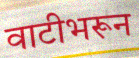
वाटीभरून